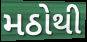
મઠોથી